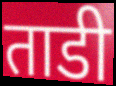
ताडी